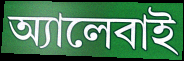
অ্যালেবাই